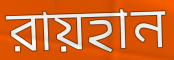
রায়হান